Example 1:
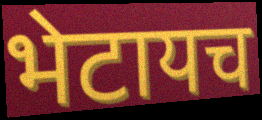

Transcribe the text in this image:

भेटायच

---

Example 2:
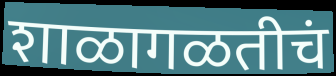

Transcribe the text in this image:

शाळागळतीचं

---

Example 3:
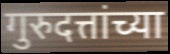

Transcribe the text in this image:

गुरुदत्तांच्या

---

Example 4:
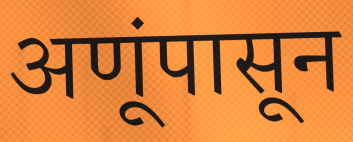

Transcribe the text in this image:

अणूंपासून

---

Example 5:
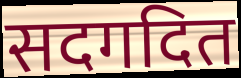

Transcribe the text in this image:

सदगदित